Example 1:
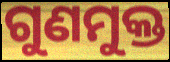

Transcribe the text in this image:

ଗୁଣମୁକ୍ତ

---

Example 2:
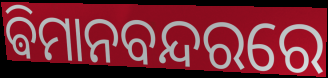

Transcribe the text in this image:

ଵିମାନବନ୍ଦରରେ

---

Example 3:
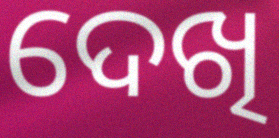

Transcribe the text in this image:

ଦେଖି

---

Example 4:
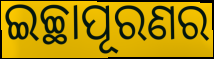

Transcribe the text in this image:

ଇଚ୍ଛାପୂରଣର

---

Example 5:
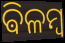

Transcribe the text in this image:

ଵିଳମ୍ବ